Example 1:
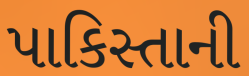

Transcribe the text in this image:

પાકિસ્તાની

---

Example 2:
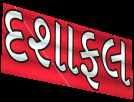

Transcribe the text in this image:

દશાફલ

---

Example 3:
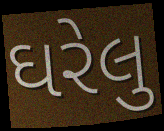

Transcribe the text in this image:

ઘરેલુ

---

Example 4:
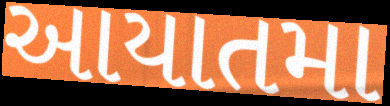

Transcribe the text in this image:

આયાતમા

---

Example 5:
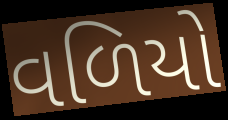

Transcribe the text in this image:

વળિયો